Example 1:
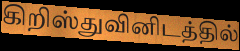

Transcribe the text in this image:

கிறிஸ்துவினிடத்தில்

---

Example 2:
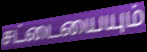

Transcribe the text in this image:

சட்டையையும்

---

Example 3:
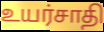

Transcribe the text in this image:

உயர்சாதி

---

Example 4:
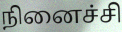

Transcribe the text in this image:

நினைச்சி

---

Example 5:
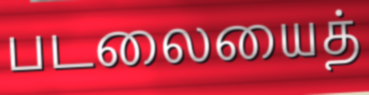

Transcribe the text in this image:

படலையைத்